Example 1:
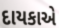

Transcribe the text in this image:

દાયકાએ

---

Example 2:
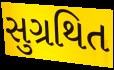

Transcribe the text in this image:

સુગ્રથિત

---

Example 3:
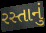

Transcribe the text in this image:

રસ્તાનું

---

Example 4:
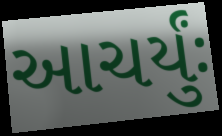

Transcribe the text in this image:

આચર્યુંઃ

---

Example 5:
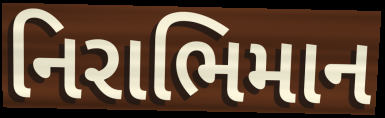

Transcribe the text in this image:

નિરાભિમાન